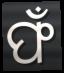
ଫଁ